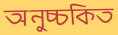
অনুচ্চকিত